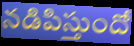
నడిపిస్తుందో